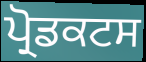
ਪ੍ਰੋਡਕਟਸ